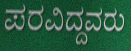
ಪರವಿದ್ದವರು